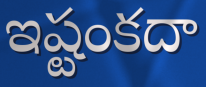
ఇష్టంకదా